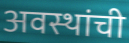
अवस्थांची